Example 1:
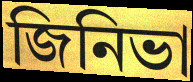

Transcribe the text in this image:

জিনিভা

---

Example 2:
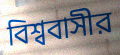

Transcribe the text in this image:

বিশ্ববাসীর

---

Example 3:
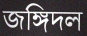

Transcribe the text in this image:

জঙ্গিদল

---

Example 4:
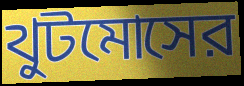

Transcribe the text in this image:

থুটমোসের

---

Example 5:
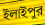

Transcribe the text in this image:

ইলাইপুর